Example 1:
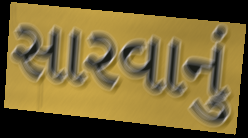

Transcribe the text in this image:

સારવાનું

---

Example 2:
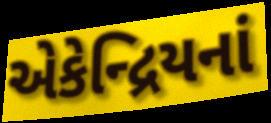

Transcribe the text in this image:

એકેન્દ્રિયનાં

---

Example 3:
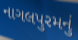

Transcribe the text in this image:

નાગલપુરમનું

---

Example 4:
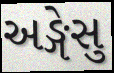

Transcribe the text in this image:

અઙ્ગેસુ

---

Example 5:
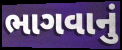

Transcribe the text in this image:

ભાગવાનું